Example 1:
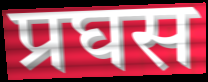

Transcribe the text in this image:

प्रघस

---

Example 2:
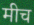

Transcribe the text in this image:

मीच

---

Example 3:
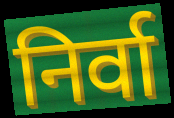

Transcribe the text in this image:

निर्वा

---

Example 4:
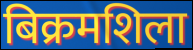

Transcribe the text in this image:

बिक्रमशिला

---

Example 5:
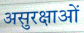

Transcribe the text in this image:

असुरक्षाओं